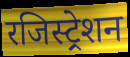
रजिस्ट्रेशन